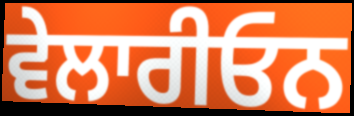
ਵੇਲਾਰੀਓਨ